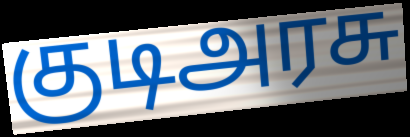
குடிஅரசு